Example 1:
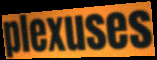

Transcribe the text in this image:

plexuses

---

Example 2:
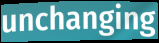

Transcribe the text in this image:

unchanging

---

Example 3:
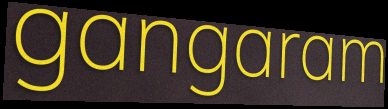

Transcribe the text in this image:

gangaram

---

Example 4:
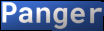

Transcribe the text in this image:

Panger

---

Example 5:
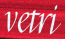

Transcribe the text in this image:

vetri